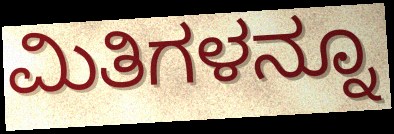
ಮಿತಿಗಳನ್ನೂ